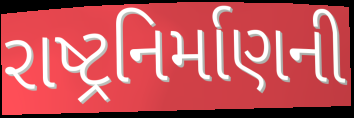
રાષ્ટ્રનિર્માણની